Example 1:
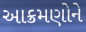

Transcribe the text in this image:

આક્રમણોને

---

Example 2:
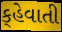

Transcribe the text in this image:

ક્‌હેવાતી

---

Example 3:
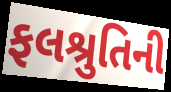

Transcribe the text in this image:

ફલશ્રુતિની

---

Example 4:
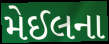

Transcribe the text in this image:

મેઈલના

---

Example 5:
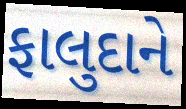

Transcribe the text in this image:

ફાલુદાને